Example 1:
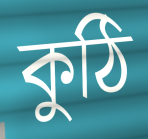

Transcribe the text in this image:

কুঠি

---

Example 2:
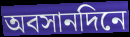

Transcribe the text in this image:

অবসানদিনে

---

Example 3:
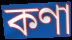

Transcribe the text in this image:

কণা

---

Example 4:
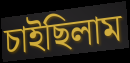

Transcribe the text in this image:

চাইছিলাম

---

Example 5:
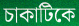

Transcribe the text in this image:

চাকাটিকে